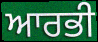
ਆਰਭੀ